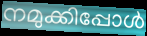
നമുക്കിപ്പോൾ